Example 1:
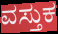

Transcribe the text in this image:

ವಸ್ತುಕ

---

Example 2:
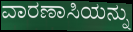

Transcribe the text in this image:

ವಾರಣಾಸಿಯನ್ನು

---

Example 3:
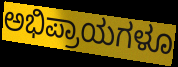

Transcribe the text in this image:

ಅಭಿಪ್ರಾಯಗಳೂ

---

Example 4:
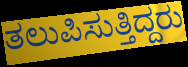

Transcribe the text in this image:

ತಲುಪಿಸುತ್ತಿದ್ದರು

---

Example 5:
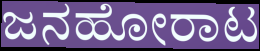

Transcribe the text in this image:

ಜನಹೋರಾಟ